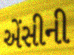
એંસીની